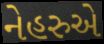
નેહરુએ